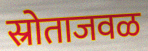
स्रोताजवळ